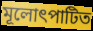
মূলোৎপাটিত